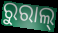
ରୁରାଲ୍